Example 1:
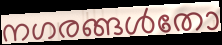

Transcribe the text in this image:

നഗരങ്ങൾതോ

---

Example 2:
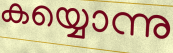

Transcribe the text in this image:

കയ്യൊന്നു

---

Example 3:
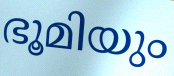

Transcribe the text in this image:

ഭൂമിയും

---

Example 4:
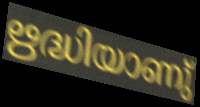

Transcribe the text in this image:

ഋദ്ധിയാണു്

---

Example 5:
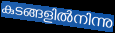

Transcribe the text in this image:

കുടങ്ങളിൽനിന്നു